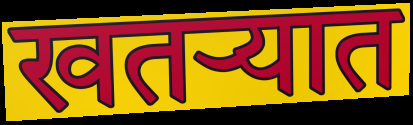
खतऱ्यात